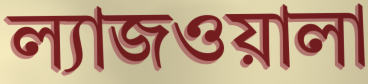
ল্যাজওয়ালা